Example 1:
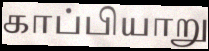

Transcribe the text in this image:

காப்பியாறு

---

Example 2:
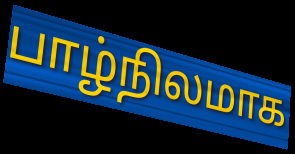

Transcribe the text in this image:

பாழ்நிலமாக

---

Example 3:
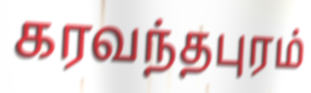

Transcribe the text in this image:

கரவந்தபுரம்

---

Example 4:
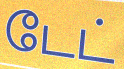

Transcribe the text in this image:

டேட்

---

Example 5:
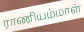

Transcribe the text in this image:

ராணியம்மாள்